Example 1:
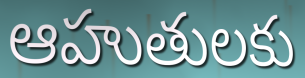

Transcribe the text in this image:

ఆహుతులకు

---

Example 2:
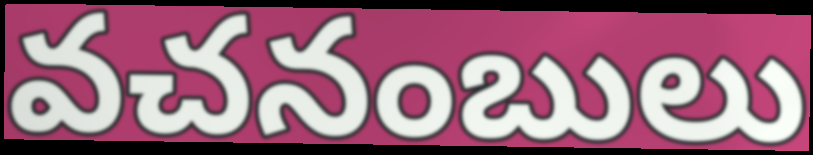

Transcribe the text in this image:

వచనంబులు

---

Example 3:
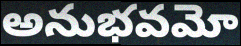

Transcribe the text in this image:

అనుభవమో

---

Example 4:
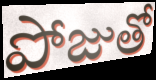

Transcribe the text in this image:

పోజుతో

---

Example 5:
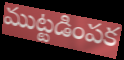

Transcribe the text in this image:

ముట్టడింపక